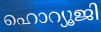
ഹൊറ്യൂജി